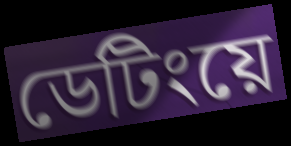
ডেটিংয়ে